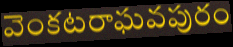
వెంకటరాఘవపురం